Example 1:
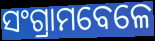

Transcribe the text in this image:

ସଂଗ୍ରାମବେଳେ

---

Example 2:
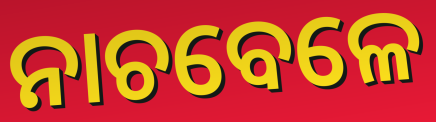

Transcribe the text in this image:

ନାଚବେଳେ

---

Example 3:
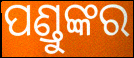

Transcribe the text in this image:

ପଣ୍ଡୁଙ୍କର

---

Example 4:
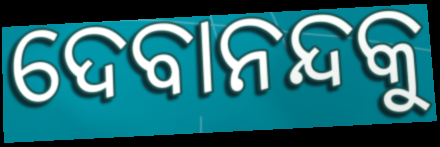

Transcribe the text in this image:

ଦେବାନନ୍ଦକୁ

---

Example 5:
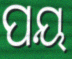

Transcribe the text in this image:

ପୟ